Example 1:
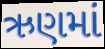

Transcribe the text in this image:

ઋણમાં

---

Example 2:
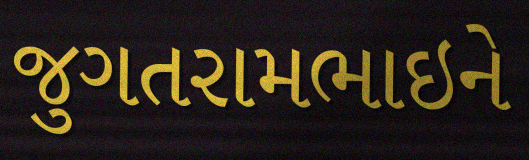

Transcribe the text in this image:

જુગતરામભાઇને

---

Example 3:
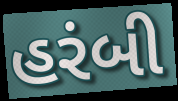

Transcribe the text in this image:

હરંબી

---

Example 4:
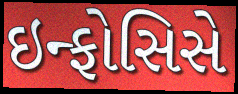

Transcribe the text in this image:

ઇન્ફોસિસે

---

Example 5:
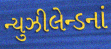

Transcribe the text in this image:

ન્યુઝીલેન્ડનાં